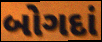
બોગદાં